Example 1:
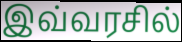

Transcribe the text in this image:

இவ்வரசில்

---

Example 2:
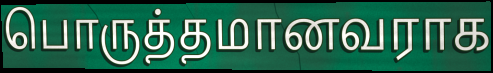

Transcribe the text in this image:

பொருத்தமானவராக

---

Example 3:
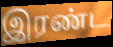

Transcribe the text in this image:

இரண்ட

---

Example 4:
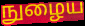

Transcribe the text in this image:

நுழைய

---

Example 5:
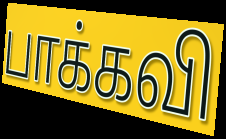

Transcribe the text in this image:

பாக்கவி